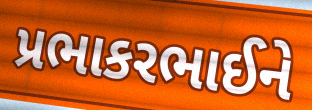
પ્રભાકરભાઈને